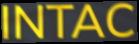
INTAC